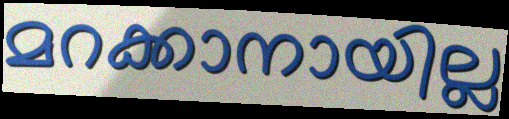
മറക്കാനായില്ല